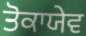
ਤੋਕਾਯੇਵ